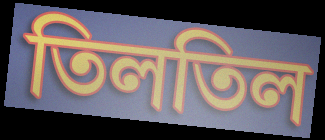
তিলতিল